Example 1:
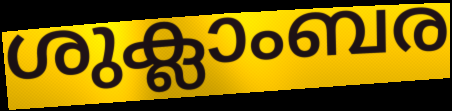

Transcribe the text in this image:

ശുക്ലാംബര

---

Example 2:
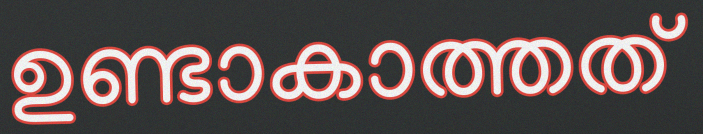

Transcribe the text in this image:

ഉണ്ടാകാത്തത്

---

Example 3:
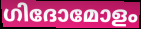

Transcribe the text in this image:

ഗിദോമോളം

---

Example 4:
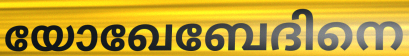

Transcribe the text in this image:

യോഖേബേദിനെ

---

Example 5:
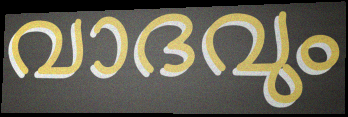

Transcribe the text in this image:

വാദവും